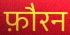
फ़ौरन